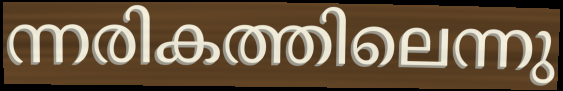
ന്നരികത്തിലെന്നു